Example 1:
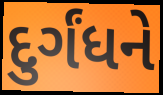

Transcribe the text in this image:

દુર્ગંધને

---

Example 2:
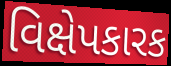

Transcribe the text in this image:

વિક્ષેપકારક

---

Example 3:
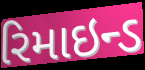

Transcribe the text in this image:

રિમાઇન્ડ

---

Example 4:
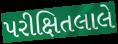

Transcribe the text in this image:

પરીક્ષિતલાલે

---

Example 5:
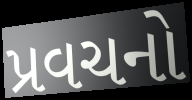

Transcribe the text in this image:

પ્રવચનો